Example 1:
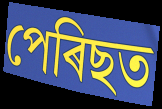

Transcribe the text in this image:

পেৰিছত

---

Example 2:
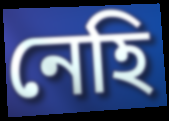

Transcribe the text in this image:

নেহি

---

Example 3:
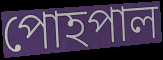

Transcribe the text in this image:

পোহপাল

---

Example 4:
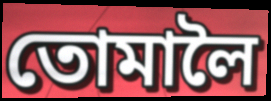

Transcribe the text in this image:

তোমালৈ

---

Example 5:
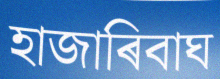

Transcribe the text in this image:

হাজাৰিবাঘ